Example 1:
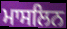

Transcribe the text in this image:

ਮਾਸਲਿਨ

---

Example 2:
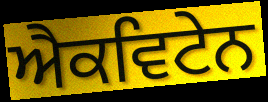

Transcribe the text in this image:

ਐਕਵਿਟੇਨ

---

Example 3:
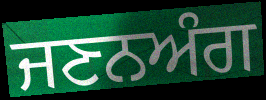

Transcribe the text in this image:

ਜਣਨਅੰਗ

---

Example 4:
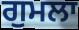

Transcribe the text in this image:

ਗੁਮਲਾ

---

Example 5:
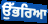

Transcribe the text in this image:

ਉੱਭਰਿਆ